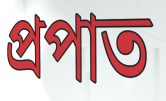
প্রপাত